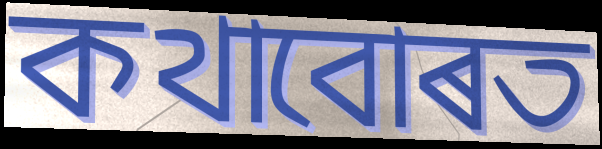
কথাবোৰত